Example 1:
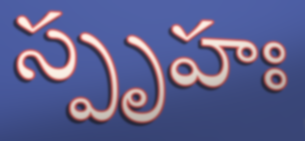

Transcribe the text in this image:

స్పృహః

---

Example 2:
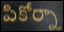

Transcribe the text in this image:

పికోర్నా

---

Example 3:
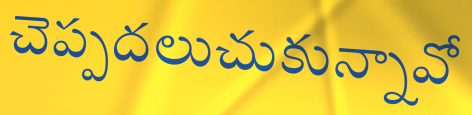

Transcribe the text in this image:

చెప్పదలుచుకున్నావో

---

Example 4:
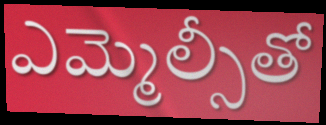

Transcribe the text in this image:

ఎమ్మెల్సీతో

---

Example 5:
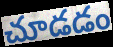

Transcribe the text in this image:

చూడడం